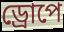
ড্ৰোপে